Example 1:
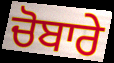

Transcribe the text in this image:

ਚੋਬਾਰੇ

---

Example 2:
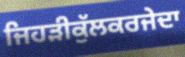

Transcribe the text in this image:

ਜਿਹੜੀਕੁੱਲਕਰਜੇਦਾ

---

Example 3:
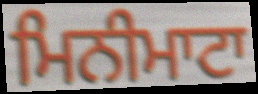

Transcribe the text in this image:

ਮਿਨੀਮਾਟਾ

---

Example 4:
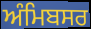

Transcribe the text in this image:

ਅੰਮਿਬਸਰ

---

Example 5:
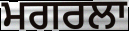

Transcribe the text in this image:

ਮਗਰਲਾ